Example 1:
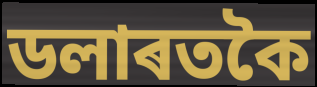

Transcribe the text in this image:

ডলাৰতকৈ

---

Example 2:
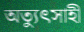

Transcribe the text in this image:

অত্যুৎসাহী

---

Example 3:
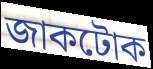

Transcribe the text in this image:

জাকটোক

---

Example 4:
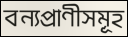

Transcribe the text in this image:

বন্যপ্ৰাণীসমূহ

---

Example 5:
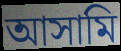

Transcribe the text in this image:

আসামি